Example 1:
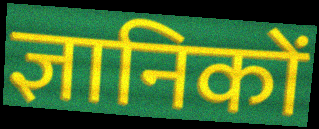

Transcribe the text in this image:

ज्ञानिकों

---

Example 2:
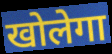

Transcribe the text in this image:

खोलेगा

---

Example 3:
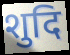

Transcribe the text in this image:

शुदि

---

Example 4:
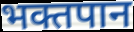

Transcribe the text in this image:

भक्तपान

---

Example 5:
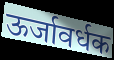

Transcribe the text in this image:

ऊर्जावर्धक